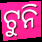
ଟୁନି